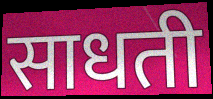
साधती